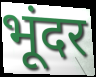
भूंदर